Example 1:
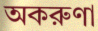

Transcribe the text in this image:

অকরুণা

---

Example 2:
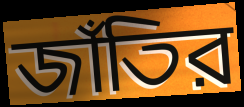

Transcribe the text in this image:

জাঁতির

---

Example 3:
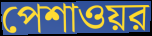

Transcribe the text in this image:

পেশাওয়র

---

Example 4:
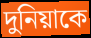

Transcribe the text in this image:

দুনিয়াকে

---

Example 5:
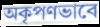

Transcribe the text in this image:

অকৃপণভাবে